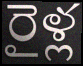
రైళ్ల